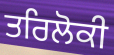
ਤਰਿਲੋਕੀ